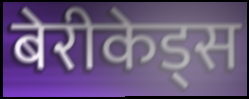
बेरीकेड्स